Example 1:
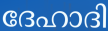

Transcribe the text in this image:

ദേഹാദി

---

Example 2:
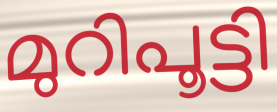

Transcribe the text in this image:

മുറിപൂട്ടി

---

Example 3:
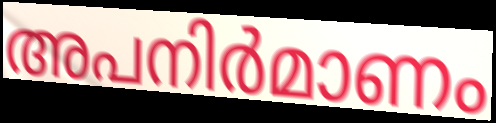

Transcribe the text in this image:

അപനിർമാണം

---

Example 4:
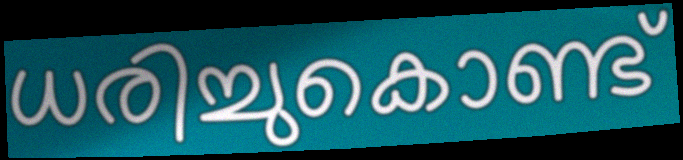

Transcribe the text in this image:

ധരിച്ചുകൊണ്ട്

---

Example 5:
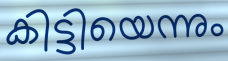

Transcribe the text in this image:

കിട്ടിയെന്നും